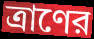
ত্রাণের